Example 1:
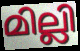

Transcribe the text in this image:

മില്ലി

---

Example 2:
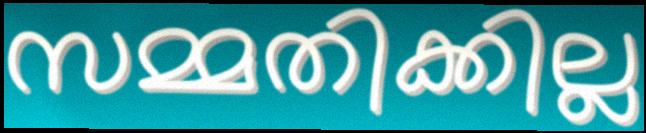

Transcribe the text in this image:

സമ്മതിക്കില്ല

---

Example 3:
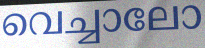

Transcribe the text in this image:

വെച്ചാലോ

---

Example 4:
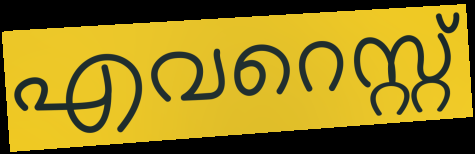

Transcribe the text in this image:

എവറെസ്റ്റ്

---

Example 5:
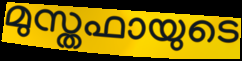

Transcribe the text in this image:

മുസ്തഫായുടെ